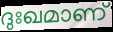
ദുഃഖമാണ്